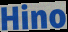
Hino